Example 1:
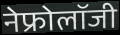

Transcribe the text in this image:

नेफ्रोलॉजी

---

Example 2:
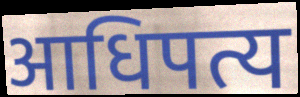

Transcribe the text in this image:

आधिपत्य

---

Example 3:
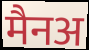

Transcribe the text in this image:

मैनअ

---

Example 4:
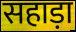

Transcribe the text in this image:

सहाड़ा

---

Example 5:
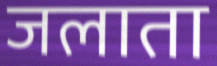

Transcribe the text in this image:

जलाता